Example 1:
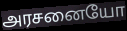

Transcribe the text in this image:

அரசனையோ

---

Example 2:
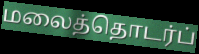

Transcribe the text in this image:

மலைத்தொடர்ப்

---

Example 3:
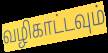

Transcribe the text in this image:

வழிகாட்டவும்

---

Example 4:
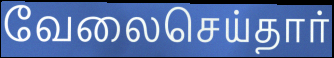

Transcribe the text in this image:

வேலைசெய்தார்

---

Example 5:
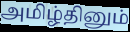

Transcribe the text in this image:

அமிழ்தினும்